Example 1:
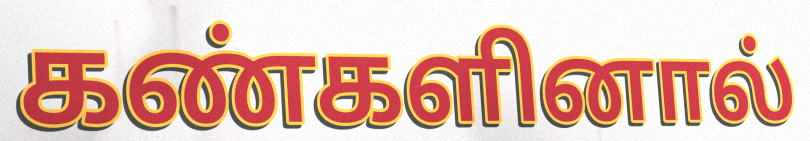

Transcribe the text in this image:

கண்களினால்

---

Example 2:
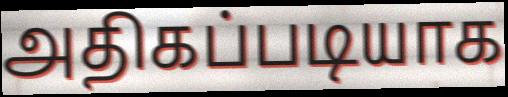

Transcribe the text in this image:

அதிகப்படியாக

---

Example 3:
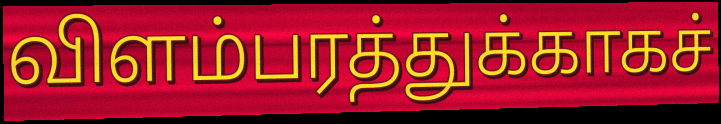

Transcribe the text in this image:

விளம்பரத்துக்காகச்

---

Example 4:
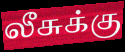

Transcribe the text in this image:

லீசுக்கு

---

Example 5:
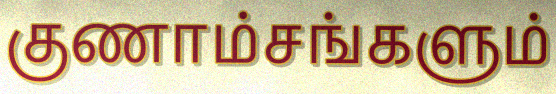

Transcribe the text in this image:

குணாம்சங்களும்